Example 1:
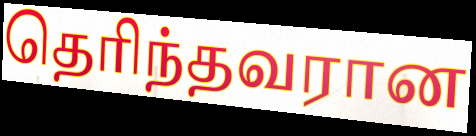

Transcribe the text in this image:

தெரிந்தவரான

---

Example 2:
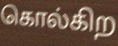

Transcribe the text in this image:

கொல்கிற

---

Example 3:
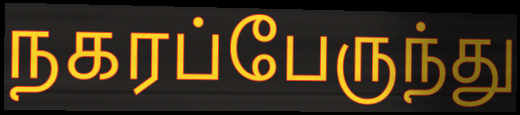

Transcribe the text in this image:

நகரப்பேருந்து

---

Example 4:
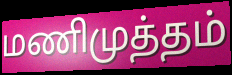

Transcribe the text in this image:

மணிமுத்தம்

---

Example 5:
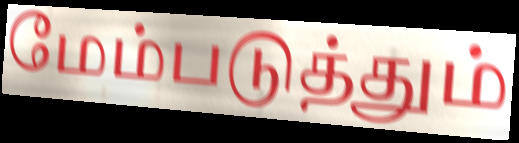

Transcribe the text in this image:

மேம்படுத்தும்